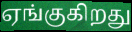
ஏங்குகிறது